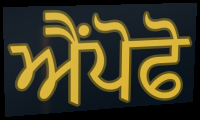
ਐਂਪੋਫੋ